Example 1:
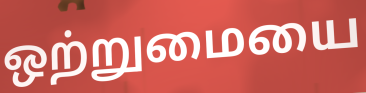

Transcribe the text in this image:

ஒற்றுமையை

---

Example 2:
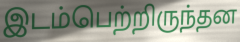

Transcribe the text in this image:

இடம்பெற்றிருந்தன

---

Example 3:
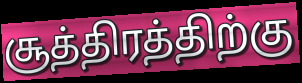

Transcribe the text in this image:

சூத்திரத்திற்கு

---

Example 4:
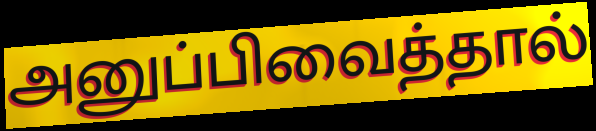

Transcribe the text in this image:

அனுப்பிவைத்தால்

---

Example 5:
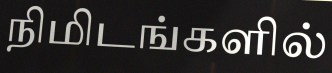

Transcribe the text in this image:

நிமிடங்களில்